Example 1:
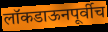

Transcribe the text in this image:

लॉकडाऊनपूर्वीच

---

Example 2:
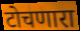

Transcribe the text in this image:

टोचणारा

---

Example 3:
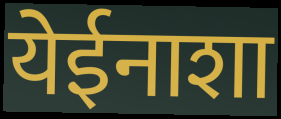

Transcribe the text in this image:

येईनाशा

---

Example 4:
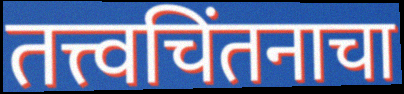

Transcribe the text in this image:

तत्त्वचिंतनाचा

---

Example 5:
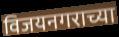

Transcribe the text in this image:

विजयनगराच्या